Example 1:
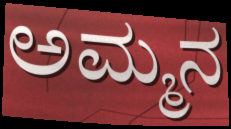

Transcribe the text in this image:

ಅಮ್ಮನ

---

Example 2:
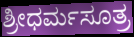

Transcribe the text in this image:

ಶ್ರೀಧರ್ಮಸೂತ್ರ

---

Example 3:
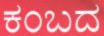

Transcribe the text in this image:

ಕಂಬದ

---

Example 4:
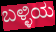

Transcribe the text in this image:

ಬಳ್ಳಿಯ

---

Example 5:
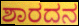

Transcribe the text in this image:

ಶಾರದನ